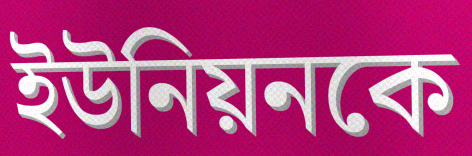
ইউনিয়নকে